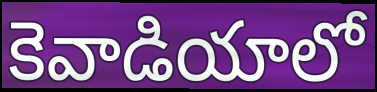
కెవాడియాలో